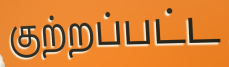
குற்றப்பட்ட